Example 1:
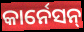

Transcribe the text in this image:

କାର୍ନେସନ୍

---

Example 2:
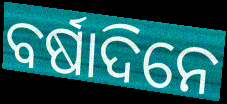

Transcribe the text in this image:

ବର୍ଷାଦିନେ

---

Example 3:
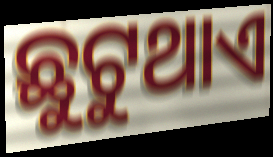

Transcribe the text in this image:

ଛୁଟୁଥାଏ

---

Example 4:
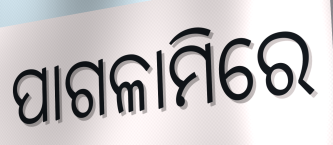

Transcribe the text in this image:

ପାଗଳାମିରେ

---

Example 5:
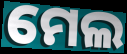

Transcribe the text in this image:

ମେଲ